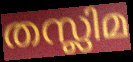
തസ്ലിമ